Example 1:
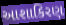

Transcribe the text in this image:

આશાકિરણ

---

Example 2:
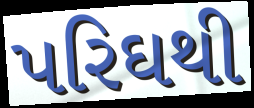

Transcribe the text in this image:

પરિઘથી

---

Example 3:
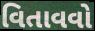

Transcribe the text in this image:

વિતાવવો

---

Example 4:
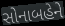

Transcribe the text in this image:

સોનાબહેને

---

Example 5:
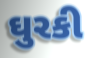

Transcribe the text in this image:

ઘુરકી